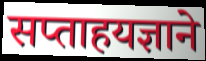
सप्ताहयज्ञाने